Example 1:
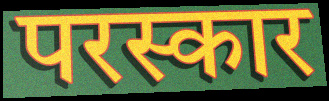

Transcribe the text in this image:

परस्कार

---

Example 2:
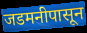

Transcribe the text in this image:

जडमनीपासून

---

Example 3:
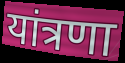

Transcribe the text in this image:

यांत्रणा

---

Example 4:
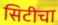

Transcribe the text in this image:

सिटीचा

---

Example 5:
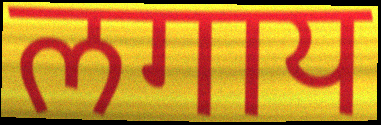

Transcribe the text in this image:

लगाय